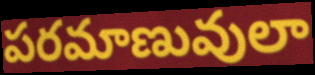
పరమాణువులా